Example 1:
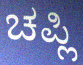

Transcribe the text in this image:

ಚಪ್ಲಿ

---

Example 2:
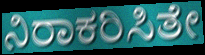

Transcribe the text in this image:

ನಿರಾಕರಿಸಿತೇ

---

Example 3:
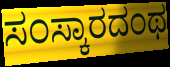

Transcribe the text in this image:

ಸಂಸ್ಕಾರದಂಥ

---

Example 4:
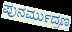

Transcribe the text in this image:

ಪುನರ್ಮುದ್ರಣ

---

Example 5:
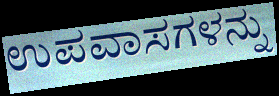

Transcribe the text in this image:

ಉಪವಾಸಗಳನ್ನು